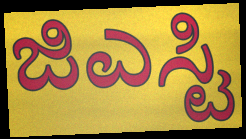
ಜಿಎಸ್ಟಿ